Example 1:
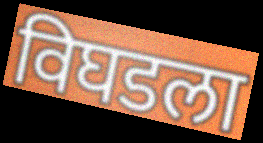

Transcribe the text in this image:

विघडला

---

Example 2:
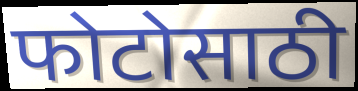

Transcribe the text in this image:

फोटोसाठी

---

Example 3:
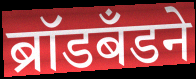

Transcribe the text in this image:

ब्रॉडबँडने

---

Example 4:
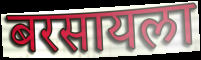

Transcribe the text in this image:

बरसायला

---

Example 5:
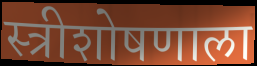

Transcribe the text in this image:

स्त्रीशोषणाला